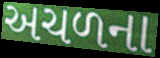
અચળના